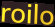
roilo